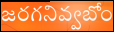
జరగనివ్వబోం